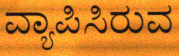
ವ್ಯಾಪಿಸಿರುವ